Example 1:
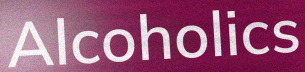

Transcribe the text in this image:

Alcoholics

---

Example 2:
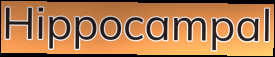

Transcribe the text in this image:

Hippocampal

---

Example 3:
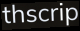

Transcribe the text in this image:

thscrip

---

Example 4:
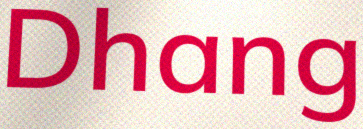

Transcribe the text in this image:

Dhang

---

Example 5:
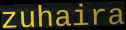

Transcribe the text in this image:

zuhaira